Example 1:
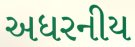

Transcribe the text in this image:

અધરનીય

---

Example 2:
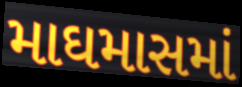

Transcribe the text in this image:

માઘમાસમાં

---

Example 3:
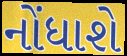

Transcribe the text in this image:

નોંધાશે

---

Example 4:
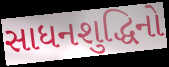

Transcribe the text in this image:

સાધનશુદ્ધિનો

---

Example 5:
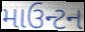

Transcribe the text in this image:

માઉન્ટન